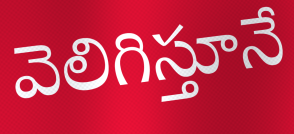
వెలిగిస్తూనే